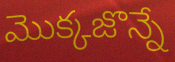
మొక్కజొన్నే